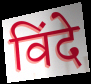
विंदे